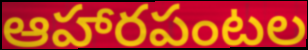
ఆహారపంటల